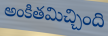
అంకితమిచ్చింది